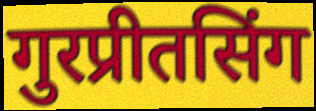
गुरप्रीतसिंग